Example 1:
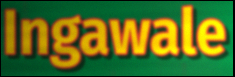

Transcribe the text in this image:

Ingawale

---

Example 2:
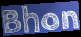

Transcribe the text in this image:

Bhon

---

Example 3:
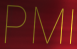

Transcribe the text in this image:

PMI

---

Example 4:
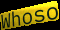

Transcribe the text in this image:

Whoso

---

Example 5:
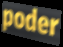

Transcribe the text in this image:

poder